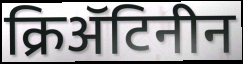
क्रिॲटिनीन